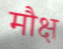
मौक्ष